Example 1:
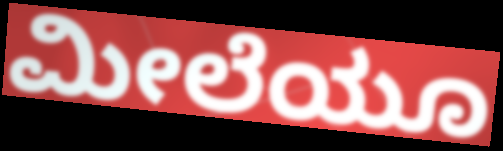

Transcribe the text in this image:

ಮೀಲೆಯೂ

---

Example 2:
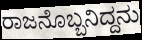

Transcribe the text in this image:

ರಾಜನೊಬ್ಬನಿದ್ದನು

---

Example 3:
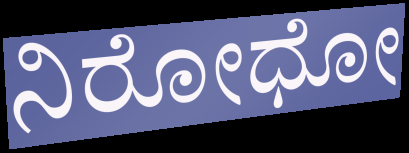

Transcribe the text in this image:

ನಿರೋಧೋ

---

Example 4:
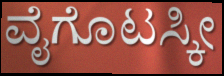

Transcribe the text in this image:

ವೈಗೊಟಸ್ಕೀ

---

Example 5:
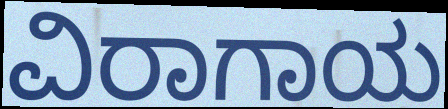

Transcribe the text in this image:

ವಿರಾಗಾಯ